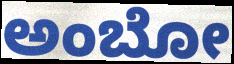
ಅಂಬೋ